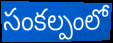
సంకల్పంలో